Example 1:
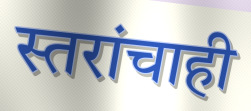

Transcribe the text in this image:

स्तरांचाही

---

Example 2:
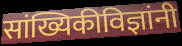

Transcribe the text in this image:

सांख्यिकीविज्ञांनी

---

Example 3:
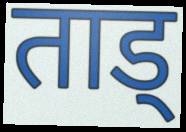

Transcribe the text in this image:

ताड्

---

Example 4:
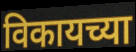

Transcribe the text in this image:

विकायच्या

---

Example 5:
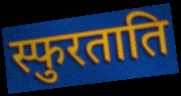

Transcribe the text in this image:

स्फुरताति